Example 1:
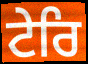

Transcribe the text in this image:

ਟੇਰਿ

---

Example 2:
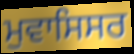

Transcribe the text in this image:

ਮੁਵਾਸਿਸਰ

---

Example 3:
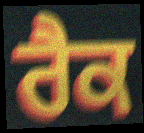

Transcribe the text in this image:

ਰੈਕ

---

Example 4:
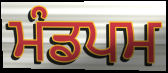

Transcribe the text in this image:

ਮੰਡਪਮ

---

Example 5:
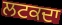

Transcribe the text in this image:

ਲਟਕਦਾ